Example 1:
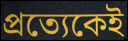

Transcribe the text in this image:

প্ৰত্যেকেই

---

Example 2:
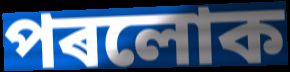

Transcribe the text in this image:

পৰলোক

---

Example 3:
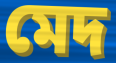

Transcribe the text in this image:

মেদ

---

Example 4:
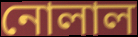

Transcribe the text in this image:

নোলাল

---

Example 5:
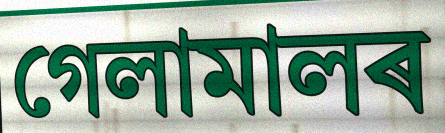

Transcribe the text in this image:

গেলামালৰ